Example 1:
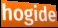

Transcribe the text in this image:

hogide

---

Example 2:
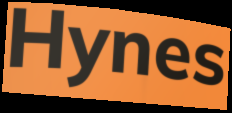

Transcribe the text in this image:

Hynes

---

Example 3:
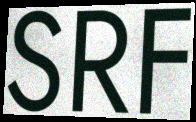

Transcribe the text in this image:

SRF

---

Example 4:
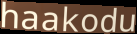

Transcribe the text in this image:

haakodu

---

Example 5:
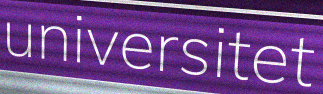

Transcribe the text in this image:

universitet